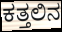
ಕತ್ತಲಿನ